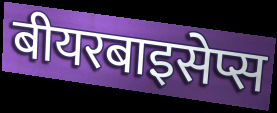
बीयरबाइसेप्स